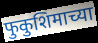
फुकुशिमाच्या